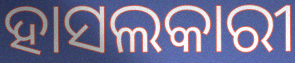
ହାସଲକାରୀ